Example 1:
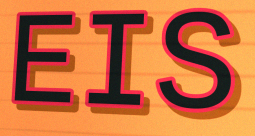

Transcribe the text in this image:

EIS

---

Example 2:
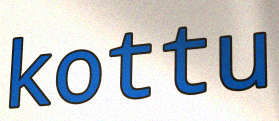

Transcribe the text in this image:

kottu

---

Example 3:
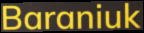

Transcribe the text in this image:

Baraniuk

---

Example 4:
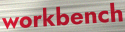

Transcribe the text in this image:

workbench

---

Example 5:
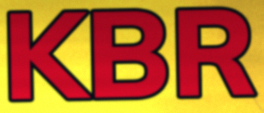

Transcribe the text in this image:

KBR